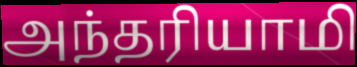
அந்தரியாமி